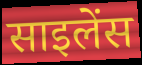
साइलेंस